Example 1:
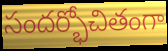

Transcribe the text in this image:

సందర్భోచితంగా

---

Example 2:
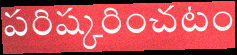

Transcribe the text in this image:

పరిష్కరించటం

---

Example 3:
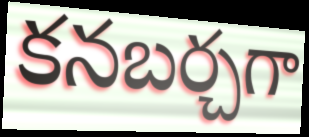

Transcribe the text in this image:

కనబర్చగా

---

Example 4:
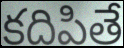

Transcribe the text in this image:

కదిపితే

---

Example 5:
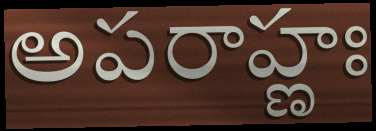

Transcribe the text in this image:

అపరాహ్ణః